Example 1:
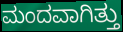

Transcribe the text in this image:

ಮಂದವಾಗಿತ್ತು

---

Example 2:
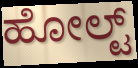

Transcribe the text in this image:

ಹೋಲ್ಟ್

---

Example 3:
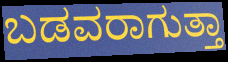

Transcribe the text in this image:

ಬಡವರಾಗುತ್ತಾ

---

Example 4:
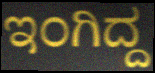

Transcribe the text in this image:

ಇಂಗಿದ್ದ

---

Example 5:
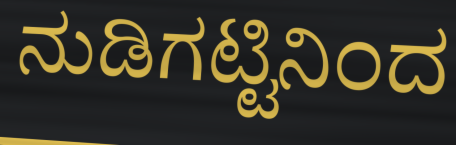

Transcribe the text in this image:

ನುಡಿಗಟ್ಟಿನಿಂದ